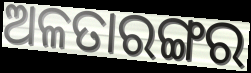
ଅଳତାରଙ୍ଗର